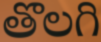
తొలగి